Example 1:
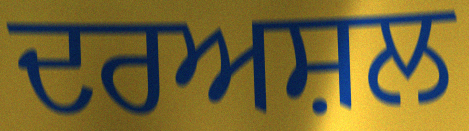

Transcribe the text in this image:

ਦਰਅਸ਼ਲ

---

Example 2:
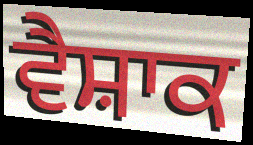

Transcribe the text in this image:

ਵੈਸ਼ਾਕ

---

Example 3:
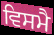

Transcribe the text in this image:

ਵਿਸਮੈ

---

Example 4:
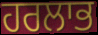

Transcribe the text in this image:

ਹਰਲਾਭ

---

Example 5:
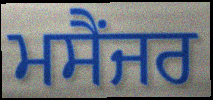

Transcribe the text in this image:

ਮਸੈਂਜਰ